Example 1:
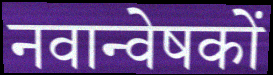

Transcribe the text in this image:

नवान्वेषकों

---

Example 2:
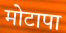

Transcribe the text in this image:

मोटापा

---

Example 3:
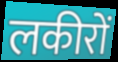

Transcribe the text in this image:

लकीरों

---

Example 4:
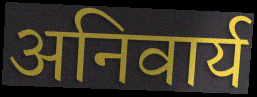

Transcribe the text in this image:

अनिवार्य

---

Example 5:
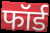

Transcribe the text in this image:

फॉर्ड